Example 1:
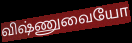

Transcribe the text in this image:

விஷ்ணுவையோ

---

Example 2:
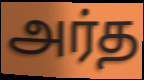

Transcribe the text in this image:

அர்த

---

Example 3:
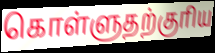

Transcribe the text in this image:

கொள்ளுதற்குரிய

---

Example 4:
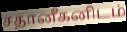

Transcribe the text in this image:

சதானீகனிடம்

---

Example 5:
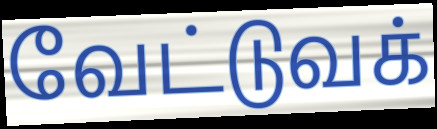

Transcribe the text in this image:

வேட்டுவக்